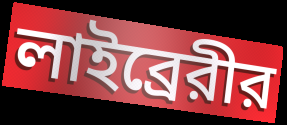
লাইব্রেরীর